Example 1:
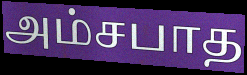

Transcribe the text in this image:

அம்சபாத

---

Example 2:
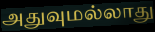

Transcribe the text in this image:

அதுவுமல்லாது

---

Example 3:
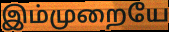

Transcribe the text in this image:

இம்முறையே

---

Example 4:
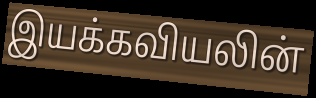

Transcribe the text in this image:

இயக்கவியலின்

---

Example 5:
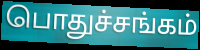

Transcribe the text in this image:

பொதுச்சங்கம்